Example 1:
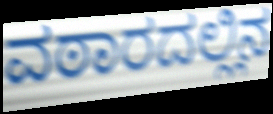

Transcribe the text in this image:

ವಠಾರದಲ್ಲಿನ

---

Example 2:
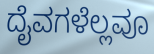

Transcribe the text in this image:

ದೈವಗಳೆಲ್ಲವೂ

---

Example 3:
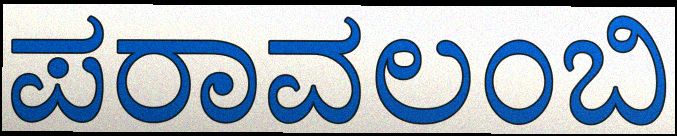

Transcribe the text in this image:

ಪರಾವಲಂಬಿ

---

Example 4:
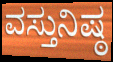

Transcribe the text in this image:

ವಸ್ತುನಿಷ್ಠ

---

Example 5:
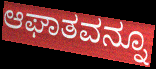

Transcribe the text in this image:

ಆಘಾತವನ್ನೂ